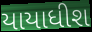
યાયાધીશ